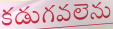
కడుగవలెను